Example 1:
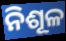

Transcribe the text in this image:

ନିଶୂଳ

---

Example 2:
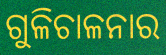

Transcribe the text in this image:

ଗୁଳିଚାଳନାର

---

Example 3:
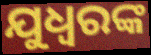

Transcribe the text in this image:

ଯୁଧ୍ୱରଙ୍କ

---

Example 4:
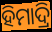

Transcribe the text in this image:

ହିମାଦ୍ରି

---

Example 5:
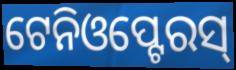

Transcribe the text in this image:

ଟେନିଓପ୍ଟେରସ୍